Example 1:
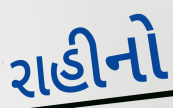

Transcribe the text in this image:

રાહીનો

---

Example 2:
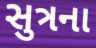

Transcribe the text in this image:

સુત્રના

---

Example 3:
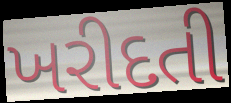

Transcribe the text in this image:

ખરીદતી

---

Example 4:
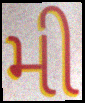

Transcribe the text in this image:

મી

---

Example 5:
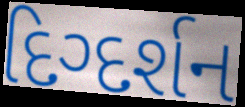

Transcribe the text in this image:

દિગ્દર્શન